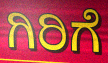
ಗಿರಿಗೆ